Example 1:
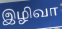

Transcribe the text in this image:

இழிவா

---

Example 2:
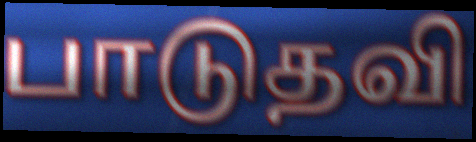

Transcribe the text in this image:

பாடுதவி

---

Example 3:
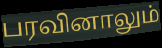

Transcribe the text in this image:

பரவினாலும்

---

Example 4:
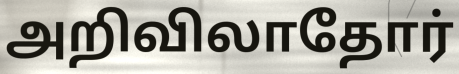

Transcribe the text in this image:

அறிவிலாதோர்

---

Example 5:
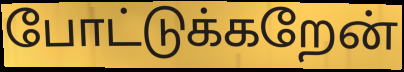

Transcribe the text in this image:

போட்டுக்கறேன்